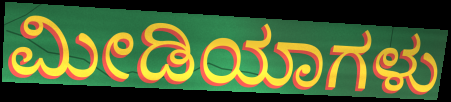
ಮೀಡಿಯಾಗಳು